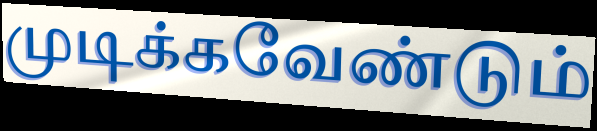
முடிக்கவேண்டும்